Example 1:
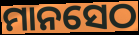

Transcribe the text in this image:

ମାନସେଠ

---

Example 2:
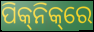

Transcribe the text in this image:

ପିକ୍‌ନିକ୍‌ରେ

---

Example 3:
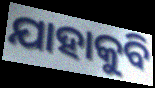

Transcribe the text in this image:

ଯାହାକୁବି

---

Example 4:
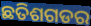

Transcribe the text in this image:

ଛତିଶଗଡର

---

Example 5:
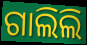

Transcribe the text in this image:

ଗାଲିଲି